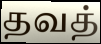
தவத்